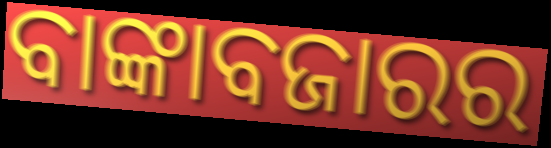
ବାଙ୍କାବଜାରର